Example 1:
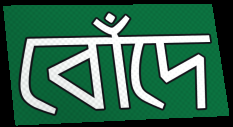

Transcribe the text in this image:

বোঁদে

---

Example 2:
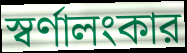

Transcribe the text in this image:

স্বর্ণালংকার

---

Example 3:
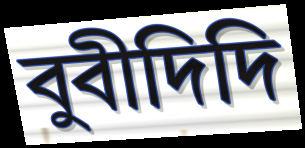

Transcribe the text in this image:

বুবীদিদি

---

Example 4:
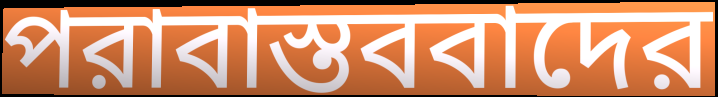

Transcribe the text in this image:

পরাবাস্তববাদের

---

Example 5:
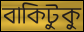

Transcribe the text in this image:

বাকিটুকু